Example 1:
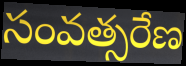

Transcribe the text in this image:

సంవత్సరేణ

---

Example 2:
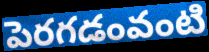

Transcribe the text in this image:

పెరగడంవంటి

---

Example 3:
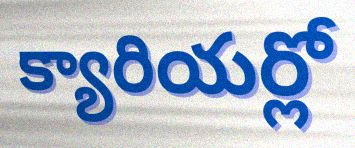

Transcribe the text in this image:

క్యారియర్లో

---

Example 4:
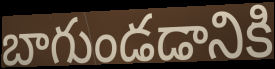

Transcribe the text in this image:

బాగుండడానికి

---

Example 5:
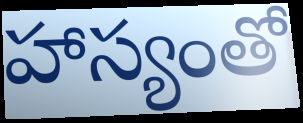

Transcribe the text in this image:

హాస్యంతో